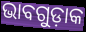
ଭାବଗୁଡ଼ାକ